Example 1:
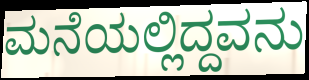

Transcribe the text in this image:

ಮನೆಯಲ್ಲಿದ್ದವನು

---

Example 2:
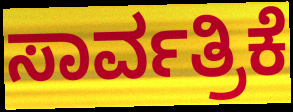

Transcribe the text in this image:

ಸಾರ್ವತ್ರಿಕೆ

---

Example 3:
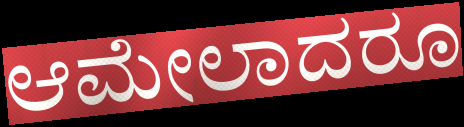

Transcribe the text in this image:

ಆಮೇಲಾದರೂ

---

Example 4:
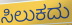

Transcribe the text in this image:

ಸಿಲುಕದು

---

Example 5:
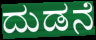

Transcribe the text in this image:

ದುಡನೆ